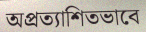
অপ্রত্যাশিতভাবে